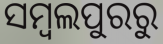
ସମ୍ବଲପୁରରୁ